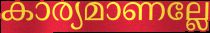
കാര്യമാണല്ലേ